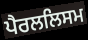
ਪੈਰਲਲਿਸਮ